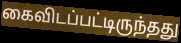
கைவிடப்பட்டிருந்தது